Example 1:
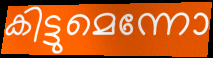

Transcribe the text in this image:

കിട്ടുമെന്നോ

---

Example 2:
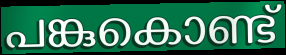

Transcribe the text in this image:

പങ്കുകൊണ്ട്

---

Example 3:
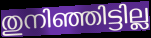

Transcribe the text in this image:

തുനിഞ്ഞിട്ടില്ല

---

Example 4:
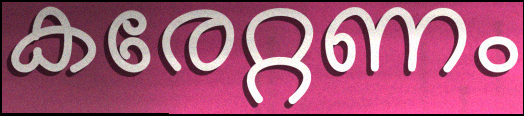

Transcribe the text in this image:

കരേറ്റണം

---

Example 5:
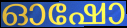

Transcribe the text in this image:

ഓഷോ